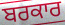
ਬਰਕਾਰ